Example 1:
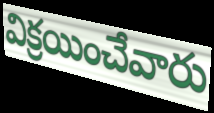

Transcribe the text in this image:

విక్రయించేవారు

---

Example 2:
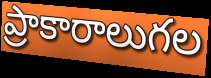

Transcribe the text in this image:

ప్రాకారాలుగల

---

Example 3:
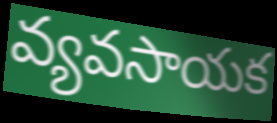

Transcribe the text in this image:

వ్యవసాయక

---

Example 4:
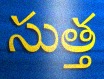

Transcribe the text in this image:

సుత్త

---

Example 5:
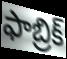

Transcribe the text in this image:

ఫాబ్రిక్